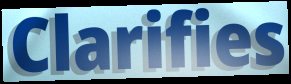
Clarifies